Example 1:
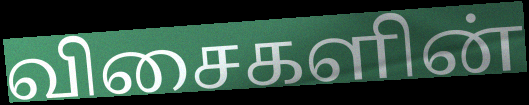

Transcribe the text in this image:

விசைகளின்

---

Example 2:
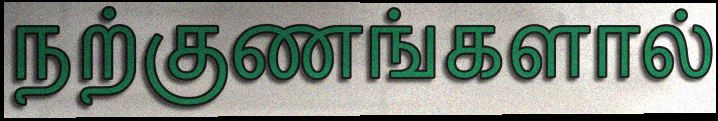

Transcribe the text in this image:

நற்குணங்களால்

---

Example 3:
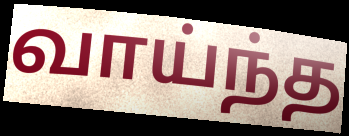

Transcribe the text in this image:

வாய்ந்த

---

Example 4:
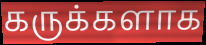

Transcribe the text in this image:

கருக்களாக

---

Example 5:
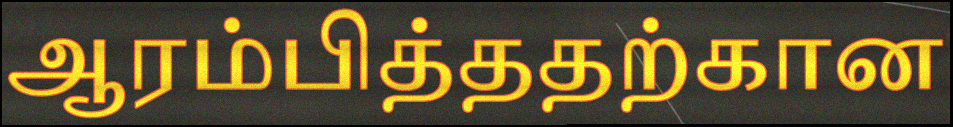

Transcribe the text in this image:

ஆரம்பித்ததற்கான